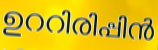
ഉററിരിപ്പിൻ